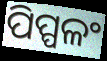
ପିପ୍ପଳଂ